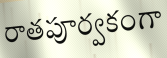
రాతపూర్వకంగా